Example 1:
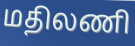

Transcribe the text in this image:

மதிலணி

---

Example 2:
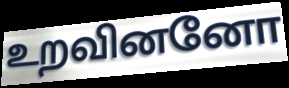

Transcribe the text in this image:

உறவினனோ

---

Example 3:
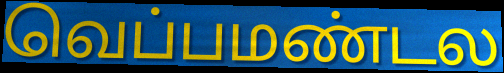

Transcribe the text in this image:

வெப்பமண்டல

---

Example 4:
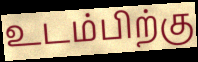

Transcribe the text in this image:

உடம்பிற்கு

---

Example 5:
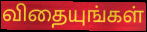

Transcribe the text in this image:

விதையுங்கள்